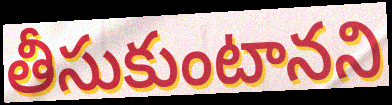
తీసుకుంటానని